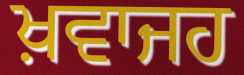
ਖ਼ਵਾਜਹ